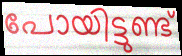
പോയിട്ടുണ്ട്